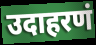
उदाहरणं